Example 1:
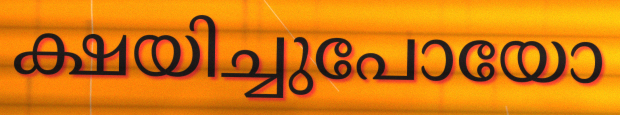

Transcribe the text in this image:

ക്ഷയിച്ചുപോയോ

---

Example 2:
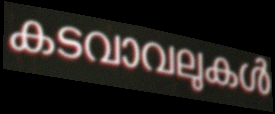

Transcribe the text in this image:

കടവാവലുകൾ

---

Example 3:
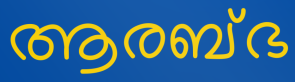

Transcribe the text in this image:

ആരബ്ഭ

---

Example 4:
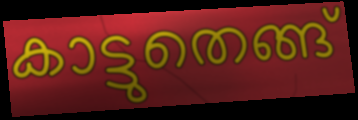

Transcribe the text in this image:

കാട്ടുതെങ്ങ്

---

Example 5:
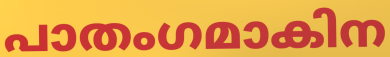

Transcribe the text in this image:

പാതംഗമാകിന